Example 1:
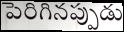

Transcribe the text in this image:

పెరిగినప్పుడు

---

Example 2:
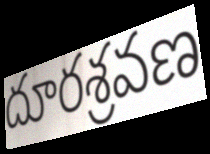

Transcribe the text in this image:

దూరశ్రవణ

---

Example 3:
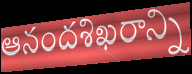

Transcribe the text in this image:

ఆనందశిఖరాన్ని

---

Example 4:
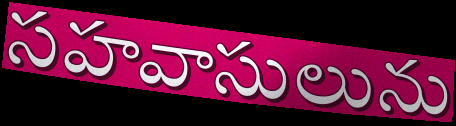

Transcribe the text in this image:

సహవాసులును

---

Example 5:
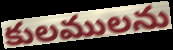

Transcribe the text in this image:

కులములను